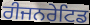
ਰੀਜਨਰੇਟਿਡ